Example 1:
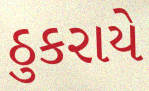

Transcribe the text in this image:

ઠુકરાયે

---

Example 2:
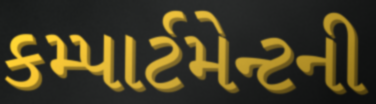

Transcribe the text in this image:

કમ્પાર્ટમેન્ટની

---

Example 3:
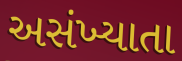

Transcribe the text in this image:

અસંખ્યાતા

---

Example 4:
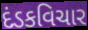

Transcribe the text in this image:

દંડકવિચાર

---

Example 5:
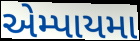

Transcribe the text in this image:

એમ્પાયમા